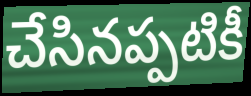
చేసినప్పటికీ